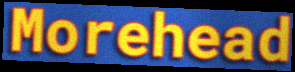
Morehead